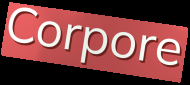
Corpore